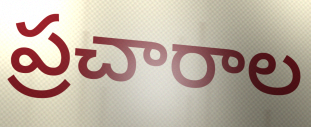
ప్రచారాల